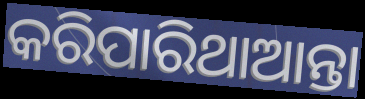
କରିପାରିଥାଆନ୍ତା